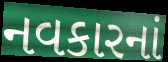
નવકારનાં